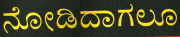
ನೋಡಿದಾಗಲೂ